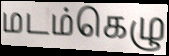
மடம்கெழு